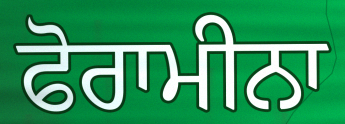
ਫੋਰਾਮੀਨਾ